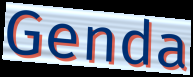
Genda